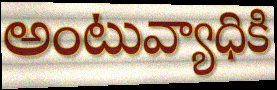
అంటువ్యాధికి